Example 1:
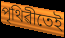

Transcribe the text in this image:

পৃথিৱীতেই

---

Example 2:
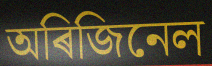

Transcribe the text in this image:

অৰিজিনেল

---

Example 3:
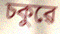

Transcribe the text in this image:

চকুৱে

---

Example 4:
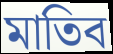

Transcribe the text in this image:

মাতিব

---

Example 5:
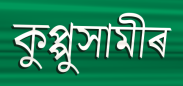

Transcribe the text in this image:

কুপ্পুসামীৰ